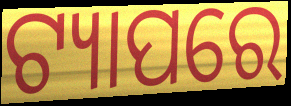
ଟ୍ୟାପରେ